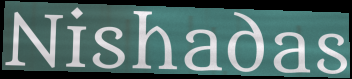
Nishadas